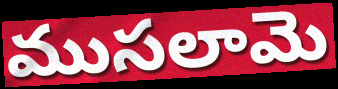
ముసలామె